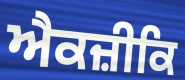
ਐਕਜ਼ੀਕਿ